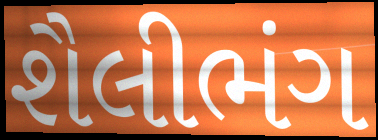
શૈલીભંગ